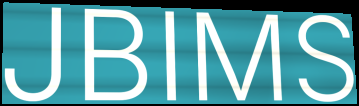
JBIMS